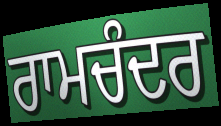
ਰਾਮਚੰਦਰ